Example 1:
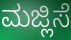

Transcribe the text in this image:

ಮಜ್ಲಿಸೆ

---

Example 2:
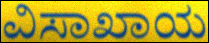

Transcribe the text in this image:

ವಿಸಾಖಾಯ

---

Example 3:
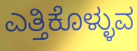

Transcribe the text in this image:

ಎತ್ತಿಕೊಳ್ಳುವ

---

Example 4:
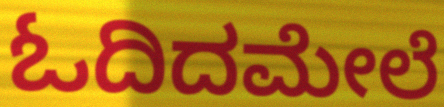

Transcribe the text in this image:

ಓದಿದಮೇಲೆ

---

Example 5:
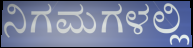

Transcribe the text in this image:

ನಿಗಮಗಳಲ್ಲಿ